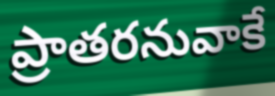
ప్రాతరనువాకే